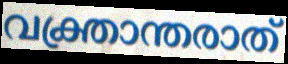
വക്ത്രാന്തരാത്